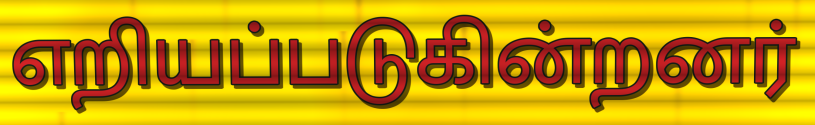
எறியப்படுகின்றனர்